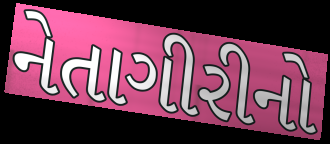
નેતાગીરીનો